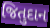
જિતુદાન